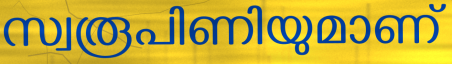
സ്വരൂപിണിയുമാണ്